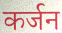
कर्जन